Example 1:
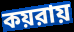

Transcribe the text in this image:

কয়রায়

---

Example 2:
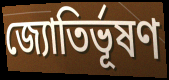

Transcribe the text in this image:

জ্যোতির্ভূষণ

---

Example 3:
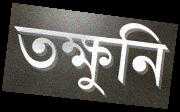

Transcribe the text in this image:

তক্ষুনি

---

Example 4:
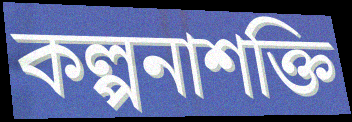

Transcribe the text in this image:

কল্পনাশক্তি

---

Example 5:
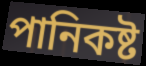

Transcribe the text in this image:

পানিকষ্ট